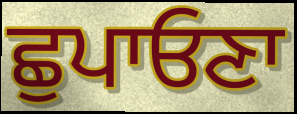
ਛੁਪਾਓਣਾ